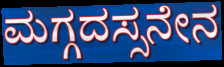
ಮಗ್ಗದಸ್ಸನೇನ